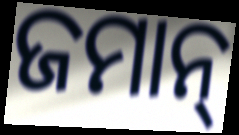
ଜମାନ୍